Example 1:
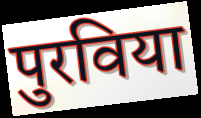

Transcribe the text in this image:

पुरविया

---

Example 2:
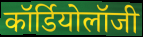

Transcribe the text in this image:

कॉर्डियोलॉजी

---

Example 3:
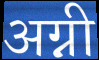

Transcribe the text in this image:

अग्नी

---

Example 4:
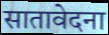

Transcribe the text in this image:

सातावेदना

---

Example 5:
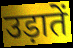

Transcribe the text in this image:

उड़ातें